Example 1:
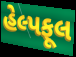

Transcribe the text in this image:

હેલ્પફૂલ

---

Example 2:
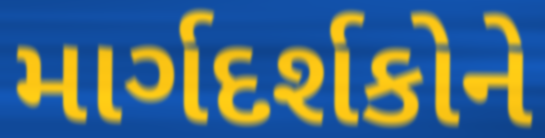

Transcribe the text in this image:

માર્ગદર્શકોને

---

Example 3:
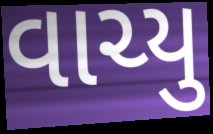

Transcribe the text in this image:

વાચ્યુ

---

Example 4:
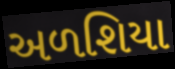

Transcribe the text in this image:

અળશિયા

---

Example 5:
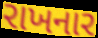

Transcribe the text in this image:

રાખનાર